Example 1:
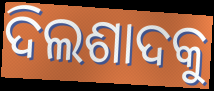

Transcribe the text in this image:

ଦିଲଶାଦକୁ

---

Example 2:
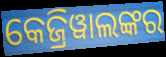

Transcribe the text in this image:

କେଜ୍ରିୱାଲଙ୍କର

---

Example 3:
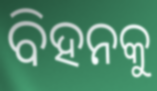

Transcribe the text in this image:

ବିହନକୁ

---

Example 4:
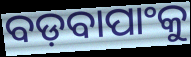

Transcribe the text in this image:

ବଡ଼ବାପାଂକୁ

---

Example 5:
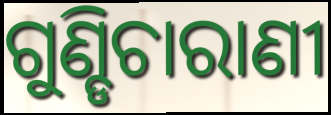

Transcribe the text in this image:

ଗୁଣ୍ଡିଚାରାଣୀ